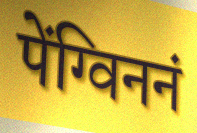
पेंग्विननं